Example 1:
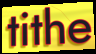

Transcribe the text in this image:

tithe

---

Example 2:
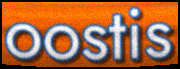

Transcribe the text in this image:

oostis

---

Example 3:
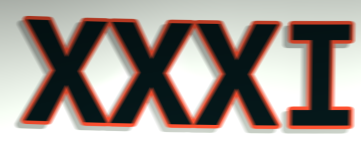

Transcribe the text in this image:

XXXI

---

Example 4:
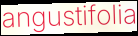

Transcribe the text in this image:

angustifolia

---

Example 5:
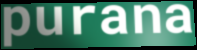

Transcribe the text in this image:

purana